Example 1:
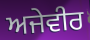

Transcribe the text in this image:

ਅਜੇਵੀਰ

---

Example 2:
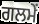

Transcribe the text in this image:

ਗਲਮੇਂ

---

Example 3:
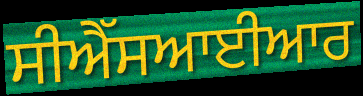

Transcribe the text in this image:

ਸੀਐੱਸਆਈਆਰ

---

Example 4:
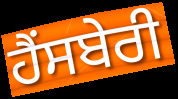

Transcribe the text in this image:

ਹੈਂਸਬੇਰੀ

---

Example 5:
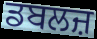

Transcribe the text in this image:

ਡਬਲਜ਼